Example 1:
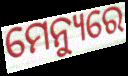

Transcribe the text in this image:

ମେନ୍ୟୁରେ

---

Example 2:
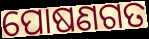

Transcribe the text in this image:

ପୋଷଣଗତ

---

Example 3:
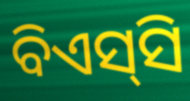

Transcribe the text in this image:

ବିଏସ୍‌ସି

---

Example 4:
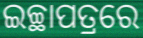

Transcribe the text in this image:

ଇଚ୍ଛାପତ୍ରରେ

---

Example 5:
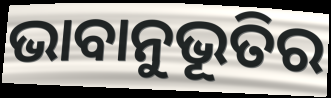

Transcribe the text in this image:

ଭାବାନୁଭୂତିର